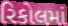
રિકોલમાં